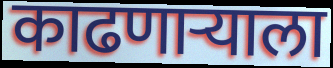
काढणार्‍याला